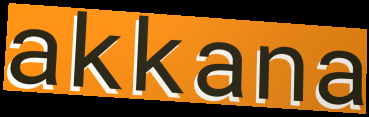
akkana